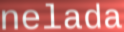
nelada